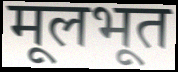
मूलभूत